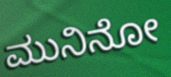
ಮುನಿನೋ